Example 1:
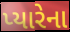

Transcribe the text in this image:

પ્યારેના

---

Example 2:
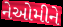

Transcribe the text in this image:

નેઓમીને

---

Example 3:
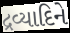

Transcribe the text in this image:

દ્રવ્યાદિને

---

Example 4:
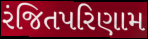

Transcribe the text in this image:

રંજિતપરિણામ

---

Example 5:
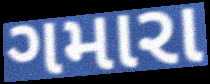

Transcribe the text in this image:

ગમારા